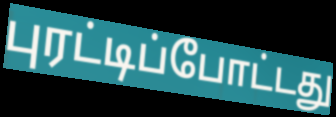
புரட்டிப்போட்டது